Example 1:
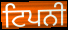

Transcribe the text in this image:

ਟਿਪਨੀ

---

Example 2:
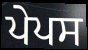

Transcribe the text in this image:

ਪੇਪਸ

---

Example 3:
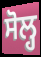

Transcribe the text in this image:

ਸੋਲ੍ਹ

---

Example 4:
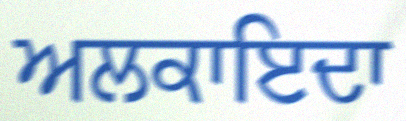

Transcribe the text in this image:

ਅਲਕਾਇਦਾ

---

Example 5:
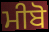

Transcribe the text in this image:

ਮੀਬੋ